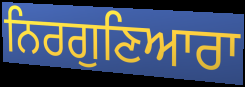
ਨਿਰਗੁਣਿਆਰਾ